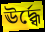
ঊর্দ্ধ্বে